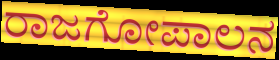
ರಾಜಗೋಪಾಲನ